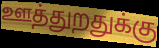
ஊத்துறதுக்கு